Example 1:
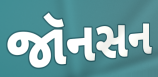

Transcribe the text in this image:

જૉનસન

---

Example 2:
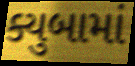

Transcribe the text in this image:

ક્યુબામાં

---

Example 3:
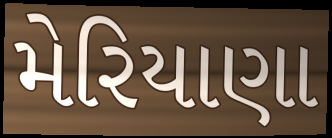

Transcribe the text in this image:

મેરિયાણા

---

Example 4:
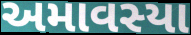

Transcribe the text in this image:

અમાવસ્યા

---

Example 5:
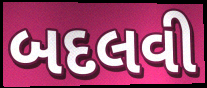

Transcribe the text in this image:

બદલવી